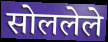
सोललेले